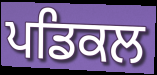
ਪਡਿਕਲ